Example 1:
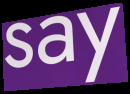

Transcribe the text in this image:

say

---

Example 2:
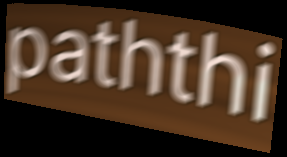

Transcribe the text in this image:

paththi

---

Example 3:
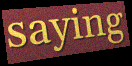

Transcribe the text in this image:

saying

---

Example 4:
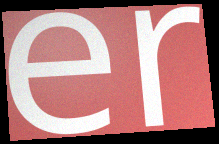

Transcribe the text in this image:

er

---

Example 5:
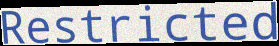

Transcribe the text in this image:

Restricted